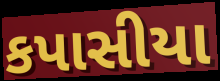
કપાસીયા